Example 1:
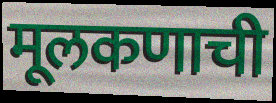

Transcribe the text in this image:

मूलकणाची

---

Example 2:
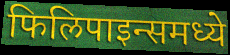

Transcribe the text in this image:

फिलिपाइन्समध्ये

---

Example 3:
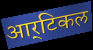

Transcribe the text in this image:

आर्टिकल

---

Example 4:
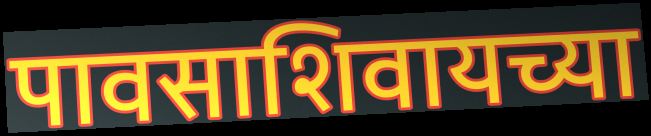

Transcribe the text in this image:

पावसाशिवायच्या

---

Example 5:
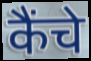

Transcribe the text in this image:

कैंचे